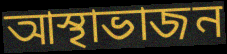
আস্থাভাজন